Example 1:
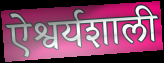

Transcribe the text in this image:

ऐश्वर्यशाली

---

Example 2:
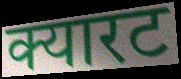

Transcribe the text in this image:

क्यारट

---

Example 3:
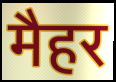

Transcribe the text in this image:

मैहर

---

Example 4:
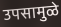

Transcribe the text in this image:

उपसामुळे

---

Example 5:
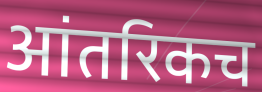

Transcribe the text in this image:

आंतरिकच